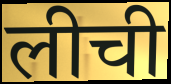
लीची